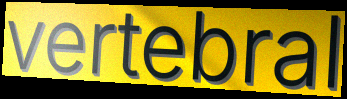
vertebral